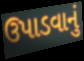
ઉપાડવાનું